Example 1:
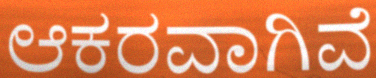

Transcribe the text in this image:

ಆಕರವಾಗಿವೆ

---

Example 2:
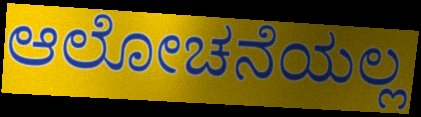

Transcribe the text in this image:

ಆಲೋಚನೆಯಲ್ಲ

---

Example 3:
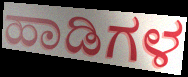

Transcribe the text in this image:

ಹಾಡಿಗಳ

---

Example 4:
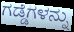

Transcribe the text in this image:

ಗಡ್ಡೆಗಳನ್ನು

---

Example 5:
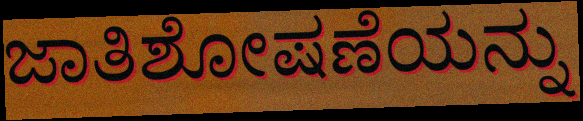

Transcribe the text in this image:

ಜಾತಿಶೋಷಣೆಯನ್ನು